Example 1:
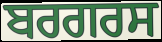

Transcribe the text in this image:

ਬਰਗਰਸ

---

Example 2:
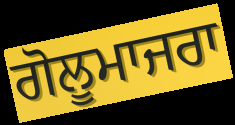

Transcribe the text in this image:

ਗੋਲੂਮਾਜਰਾ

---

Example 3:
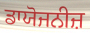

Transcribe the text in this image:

ਡਾਯੋਜਨੀਜ਼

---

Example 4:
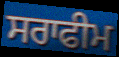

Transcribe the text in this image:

ਸਰਾਫੀਮ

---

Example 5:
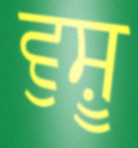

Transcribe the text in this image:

ਵੁਸ਼ੂ